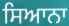
ਸਿਆਨਾ